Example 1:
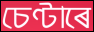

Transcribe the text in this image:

চেণ্টাৰে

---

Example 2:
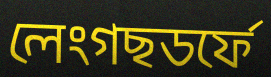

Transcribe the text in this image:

লেংগছডৰ্ফে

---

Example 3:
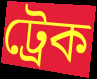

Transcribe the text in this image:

ট্ৰেক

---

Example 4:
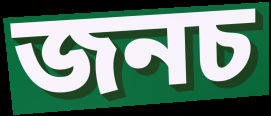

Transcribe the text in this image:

জনচ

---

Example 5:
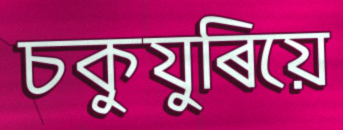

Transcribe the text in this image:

চকুযুৰিয়ে